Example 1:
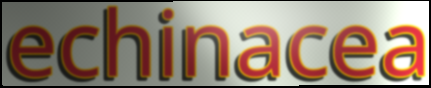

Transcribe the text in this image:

echinacea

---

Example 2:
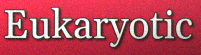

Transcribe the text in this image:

Eukaryotic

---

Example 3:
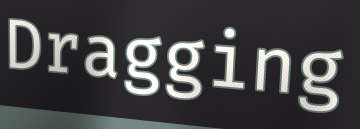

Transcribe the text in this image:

Dragging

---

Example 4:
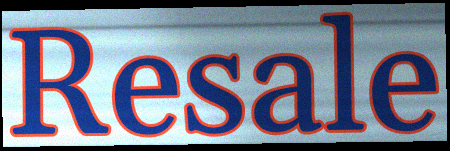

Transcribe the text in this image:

Resale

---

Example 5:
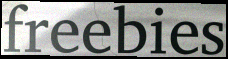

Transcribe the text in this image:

freebies